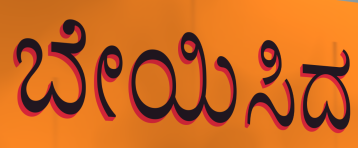
ಬೇಯಿಸಿದ